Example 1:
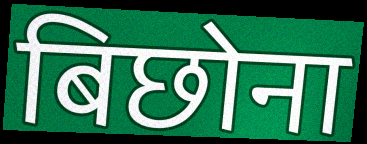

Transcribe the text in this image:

बिछोना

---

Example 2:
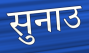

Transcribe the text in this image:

सुनाउ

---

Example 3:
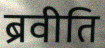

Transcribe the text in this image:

ब्रवीति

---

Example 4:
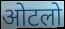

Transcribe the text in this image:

ओटलो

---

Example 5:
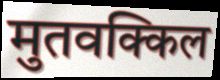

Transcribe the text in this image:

मुतवक्किल